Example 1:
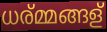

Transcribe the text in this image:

ധര്മ്മങ്ങള്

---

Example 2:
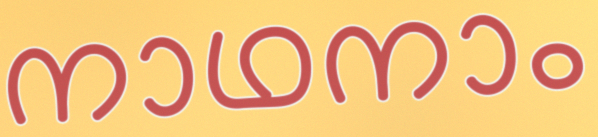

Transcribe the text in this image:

നാഥനാം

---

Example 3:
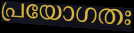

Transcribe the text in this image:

പ്രയോഗതഃ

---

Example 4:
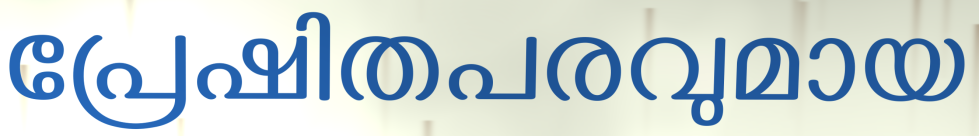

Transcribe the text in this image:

പ്രേഷിതപരവുമായ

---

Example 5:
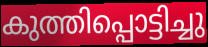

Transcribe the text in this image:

കുത്തിപ്പൊട്ടിച്ചു